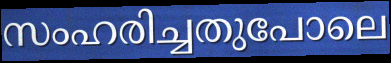
സംഹരിച്ചതുപോലെ